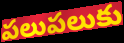
పలుపలుకు